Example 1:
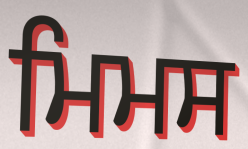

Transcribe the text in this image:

ਮਿਮਸ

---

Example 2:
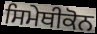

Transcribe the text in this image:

ਸਿਮੇਥੀਕੋਨ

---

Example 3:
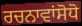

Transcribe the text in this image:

ਰਚਨਾਵਾਂਸੋਧੋ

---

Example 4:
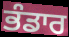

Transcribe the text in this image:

ਭੰਡਾਰ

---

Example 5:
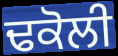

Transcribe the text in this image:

ਢਕੋਲੀ